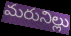
మరునిల్లు